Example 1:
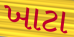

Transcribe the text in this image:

ખાટા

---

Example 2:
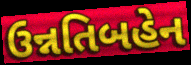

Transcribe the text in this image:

ઉન્નતિબહેન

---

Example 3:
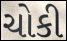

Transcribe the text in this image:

ચોકી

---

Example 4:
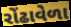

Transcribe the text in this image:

રોંઢાવેળા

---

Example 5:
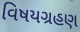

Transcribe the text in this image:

વિષયગ્રહણ